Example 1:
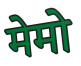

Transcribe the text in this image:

मेमो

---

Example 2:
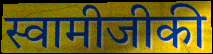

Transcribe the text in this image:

स्वामीजीकी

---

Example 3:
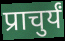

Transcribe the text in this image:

प्राचुर्यं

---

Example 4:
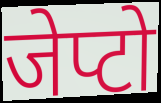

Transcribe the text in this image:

जेप्टो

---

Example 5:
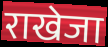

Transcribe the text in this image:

राखेजा